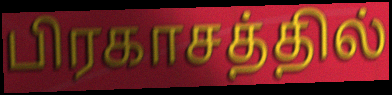
பிரகாசத்தில்